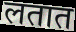
लतात